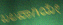
ಬಲವಾಗಿಯೇ